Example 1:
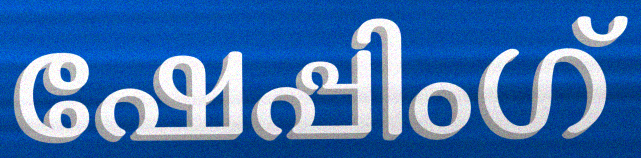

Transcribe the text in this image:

ഷേപ്പിംഗ്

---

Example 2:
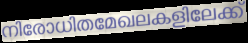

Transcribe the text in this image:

നിരോധിതമേഖലകളിലേക്ക്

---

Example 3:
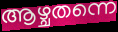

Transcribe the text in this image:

ആഴ്ചതന്നെ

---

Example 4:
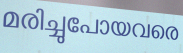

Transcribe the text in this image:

മരിച്ചുപോയവരെ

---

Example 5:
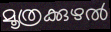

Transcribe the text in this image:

മൂത്രക്കുഴൽ